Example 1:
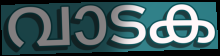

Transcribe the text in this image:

വാടക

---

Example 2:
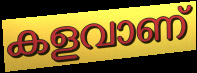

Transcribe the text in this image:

കളവാണ്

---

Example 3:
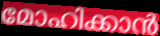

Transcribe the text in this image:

മോഹിക്കാൻ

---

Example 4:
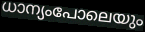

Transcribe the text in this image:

ധാന്യംപോലെയും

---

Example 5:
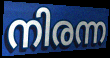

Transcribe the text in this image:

നിരന്ന